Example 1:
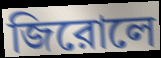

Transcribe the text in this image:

জিরোলে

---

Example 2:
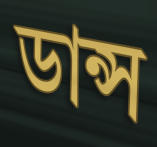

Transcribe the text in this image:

ডান্স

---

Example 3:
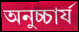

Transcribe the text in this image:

অনুচ্চার্য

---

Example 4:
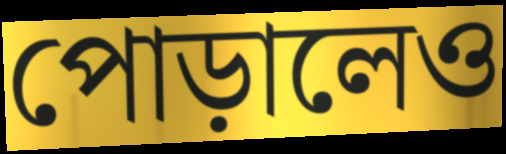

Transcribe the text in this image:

পোড়ালেও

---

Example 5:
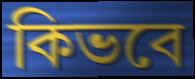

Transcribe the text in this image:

কিভবে